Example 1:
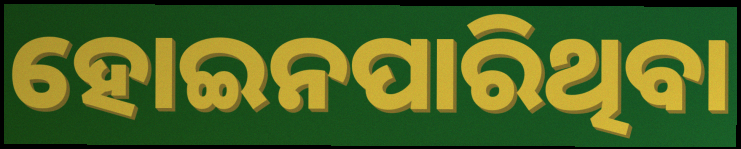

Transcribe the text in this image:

ହୋଇନପାରିଥିବା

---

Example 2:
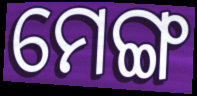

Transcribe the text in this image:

ମେଙ୍ଗ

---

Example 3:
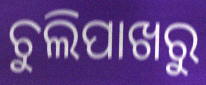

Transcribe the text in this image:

ଚୁଲିପାଖରୁ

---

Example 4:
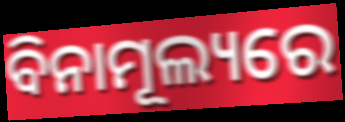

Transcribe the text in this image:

ବିନାମୂଲ୍ୟରେ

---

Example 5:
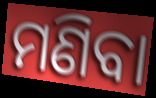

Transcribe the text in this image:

ମଣିବା